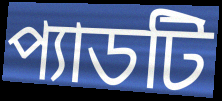
প্যাডটি